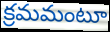
క్రమమంటూ